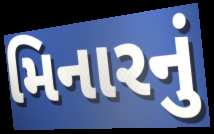
મિનારનું